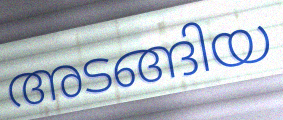
അടങ്ങിയ